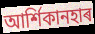
আৰ্শিকানহাৰ